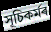
সূচিকৰ্মৰ